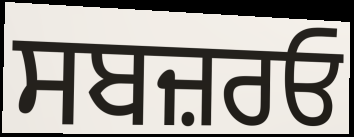
ਸਬਜ਼ਰਓ